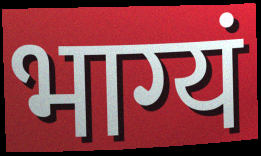
भाग्यं